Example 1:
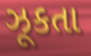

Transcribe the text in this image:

ઝૂકતા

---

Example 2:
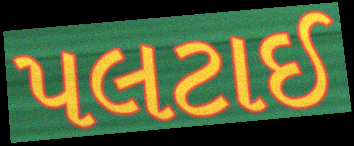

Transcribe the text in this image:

પલટાઈ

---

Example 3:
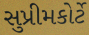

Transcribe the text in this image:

સુપ્રીમકોર્ટે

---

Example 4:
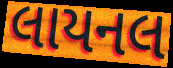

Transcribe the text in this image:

લાયનલ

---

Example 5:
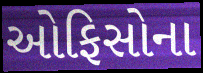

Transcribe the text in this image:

ઓફિસોના